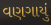
વણગાયું